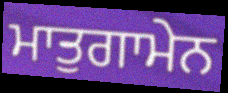
ਮਾਤੁਗਾਮੇਨ